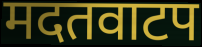
मदतवाटप